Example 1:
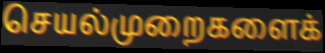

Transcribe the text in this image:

செயல்முறைகளைக்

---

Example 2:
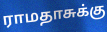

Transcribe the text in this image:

ராமதாசுக்கு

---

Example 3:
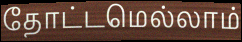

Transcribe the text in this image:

தோட்டமெல்லாம்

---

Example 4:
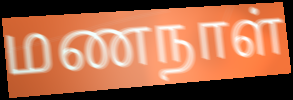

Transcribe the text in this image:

மணநாள்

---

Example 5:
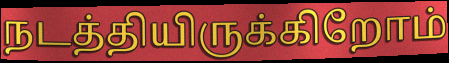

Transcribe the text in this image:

நடத்தியிருக்கிறோம்